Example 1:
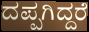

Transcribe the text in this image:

ದಪ್ಪಗಿದ್ದರೆ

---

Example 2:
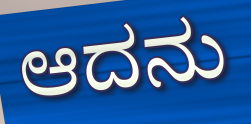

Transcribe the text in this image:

ಆದನು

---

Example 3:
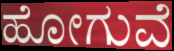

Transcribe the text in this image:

ಹೋಗುವೆ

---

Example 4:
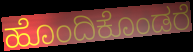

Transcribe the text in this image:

ಹೊಂದಿಕೊಂಡರೆ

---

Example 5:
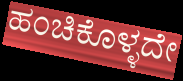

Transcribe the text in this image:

ಹಂಚಿಕೊಳ್ಳದೇ